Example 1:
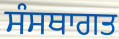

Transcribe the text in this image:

ਸੰਸਥਾਗਤ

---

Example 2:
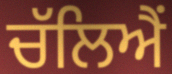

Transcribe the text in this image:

ਚੱਲਿਐਂ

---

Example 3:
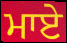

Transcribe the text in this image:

ਮਾਏ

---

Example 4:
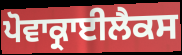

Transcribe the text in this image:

ਪੋਵਾਕ੍ਰਾਈਲੈਕਸ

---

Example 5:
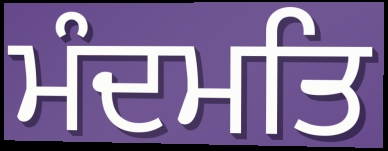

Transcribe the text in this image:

ਮੰਦਮਤਿ